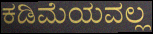
ಕಡಿಮೆಯವಲ್ಲ